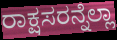
ರಾಕ್ಷಸರನ್ನೆಲ್ಲಾ